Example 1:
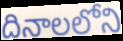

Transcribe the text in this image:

దినాలలోని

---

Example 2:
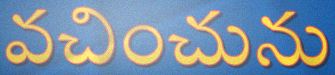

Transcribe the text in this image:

వచించును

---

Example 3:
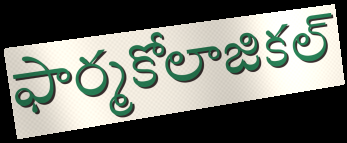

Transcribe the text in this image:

ఫార్మకోలాజికల్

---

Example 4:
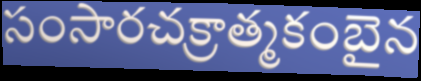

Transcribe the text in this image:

సంసారచక్రాత్మకంబైన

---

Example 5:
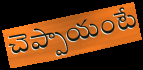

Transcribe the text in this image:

చెప్పాయంటే